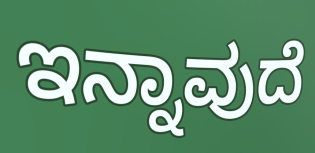
ಇನ್ನಾವುದೆ